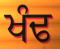
ਖੰਢ